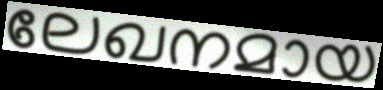
ലേഖനമായ